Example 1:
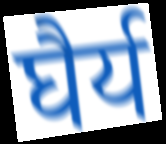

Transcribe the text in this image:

घैर्य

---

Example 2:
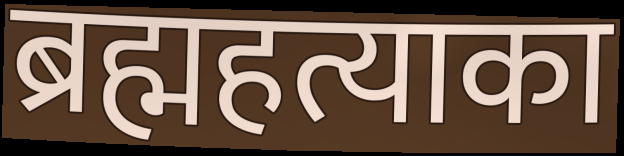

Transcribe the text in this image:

ब्रह्महत्याका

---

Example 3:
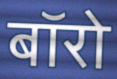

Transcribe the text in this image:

बॉरो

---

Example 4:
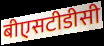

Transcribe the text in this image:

बीएसटीडीसी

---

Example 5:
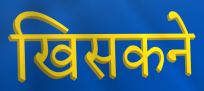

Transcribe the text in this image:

खिसकने